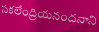
సకలేంద్రియనందనాని